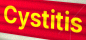
Cystitis